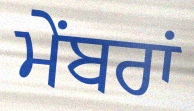
ਮੇਂਬਰਾਂ